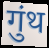
गुंथ